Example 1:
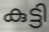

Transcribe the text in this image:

കുട്ടി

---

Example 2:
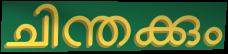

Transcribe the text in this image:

ചിന്തക്കും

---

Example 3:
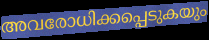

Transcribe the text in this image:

അവരോധിക്കപ്പെടുകയും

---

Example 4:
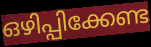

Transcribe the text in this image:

ഒഴിപ്പിക്കേണ്ട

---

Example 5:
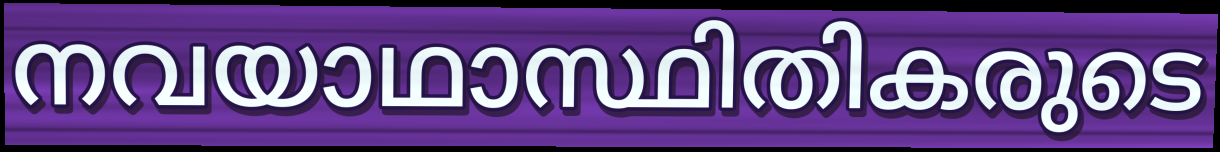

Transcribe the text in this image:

നവയാഥാസ്ഥിതികരുടെ